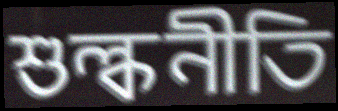
শুল্কনীতি